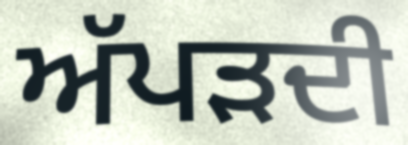
ਅੱਪੜਦੀ